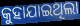
କୁହାଯାଇଥିଲା